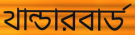
থান্ডারবার্ড